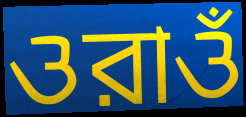
ওরাওঁ